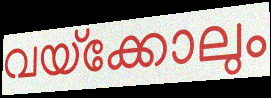
വയ്‌ക്കോലും